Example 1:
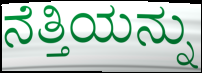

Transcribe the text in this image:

ನೆತ್ತಿಯನ್ನು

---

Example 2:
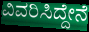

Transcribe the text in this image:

ವಿವರಿಸಿದ್ದೇನೆ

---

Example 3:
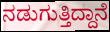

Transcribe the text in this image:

ನಡುಗುತ್ತಿದ್ದಾನೆ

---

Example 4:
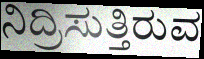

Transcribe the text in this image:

ನಿದ್ರಿಸುತ್ತಿರುವ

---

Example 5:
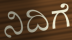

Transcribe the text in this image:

ನಿದಿಗೆ